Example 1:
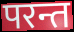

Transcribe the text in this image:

परन्त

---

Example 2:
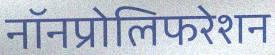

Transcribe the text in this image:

नॉनप्रोलिफरेशन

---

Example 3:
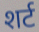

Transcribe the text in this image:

शर्ट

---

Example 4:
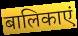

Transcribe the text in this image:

बालिकाएं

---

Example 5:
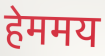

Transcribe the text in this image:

हेममय